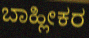
ಬಾಹ್ಲೀಕರ